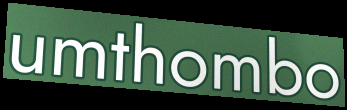
umthombo